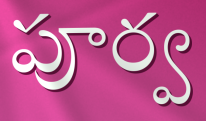
పూర్వ